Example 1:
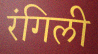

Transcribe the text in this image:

रंगिली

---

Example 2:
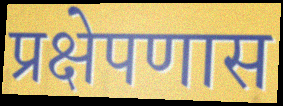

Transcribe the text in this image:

प्रक्षेपणास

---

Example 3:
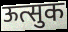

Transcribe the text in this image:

ऊत्सुक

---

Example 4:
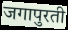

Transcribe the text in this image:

जगापुरती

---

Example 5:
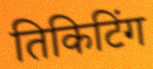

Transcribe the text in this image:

तिकिटिंग